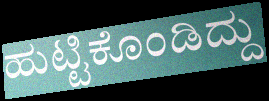
ಹುಟ್ಟಿಕೊಂಡಿದ್ದು